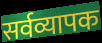
सर्वव्यापक